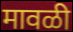
मावळी